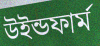
উইন্ডফার্ম